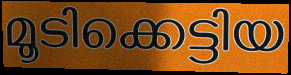
മൂടിക്കെട്ടിയ